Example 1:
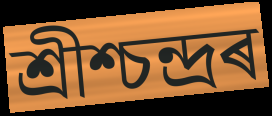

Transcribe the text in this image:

শ্ৰীশ্চন্দ্ৰৰ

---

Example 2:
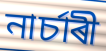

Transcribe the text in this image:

নাৰ্চাৰী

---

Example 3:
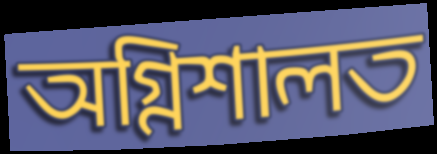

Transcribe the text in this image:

অগ্নিশালত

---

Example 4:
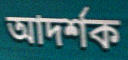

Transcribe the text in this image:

আদৰ্শক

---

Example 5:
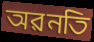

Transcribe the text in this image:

অৱনতি